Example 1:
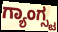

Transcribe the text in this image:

ಗ್ಯಾಂಗ್ಸ್ಟ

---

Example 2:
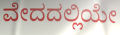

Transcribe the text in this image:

ವೇದದಲ್ಲಿಯೇ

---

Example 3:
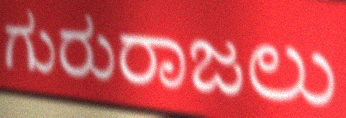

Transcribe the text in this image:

ಗುರುರಾಜಲು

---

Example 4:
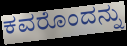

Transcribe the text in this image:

ಕವರೊಂದನ್ನು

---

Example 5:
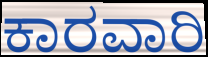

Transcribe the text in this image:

ಕಾರವಾರಿ